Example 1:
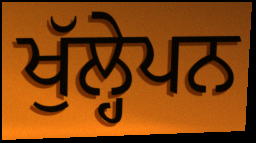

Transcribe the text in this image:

ਖੁੱਲ੍ਹੇਪਨ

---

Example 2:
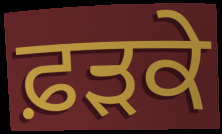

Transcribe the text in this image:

ਫ਼ਡ਼ਕੇ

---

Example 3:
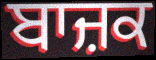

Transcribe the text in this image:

ਬਾਜ਼ਕ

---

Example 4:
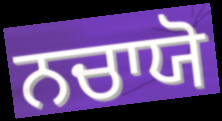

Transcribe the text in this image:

ਨਚਾਯੋ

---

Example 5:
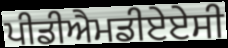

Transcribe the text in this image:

ਪੀਡੀਐਮਡੀਏਏਸੀ